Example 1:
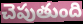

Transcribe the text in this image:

చెపుతుంది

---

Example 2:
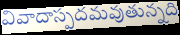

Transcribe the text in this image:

వివాదాస్పదమవుతున్నది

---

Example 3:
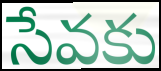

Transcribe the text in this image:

సేవకు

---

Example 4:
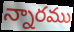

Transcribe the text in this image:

న్నారము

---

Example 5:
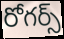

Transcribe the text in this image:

రోగర్స్